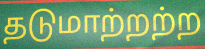
தடுமாற்றற்ற